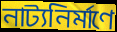
নাট্যনির্মাণে